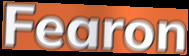
Fearon